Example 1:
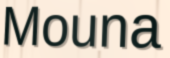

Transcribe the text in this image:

Mouna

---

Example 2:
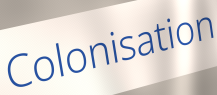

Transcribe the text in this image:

Colonisation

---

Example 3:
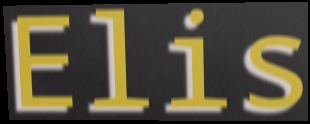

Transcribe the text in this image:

Elis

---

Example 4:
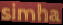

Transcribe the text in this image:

simha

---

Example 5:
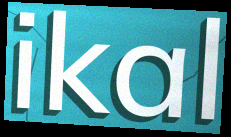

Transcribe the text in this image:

ikal